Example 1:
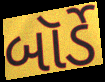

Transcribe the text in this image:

બૉર્ડે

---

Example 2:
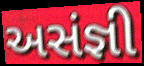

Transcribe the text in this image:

અસંજ્ઞી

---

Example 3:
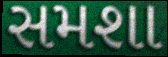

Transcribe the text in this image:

સમશા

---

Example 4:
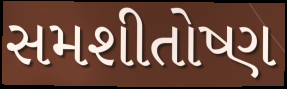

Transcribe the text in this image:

સમશીતોષ્ણ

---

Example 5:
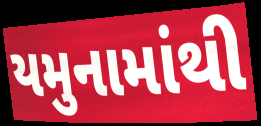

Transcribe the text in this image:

યમુનામાંથી